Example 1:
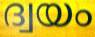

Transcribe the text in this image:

ദ്വയം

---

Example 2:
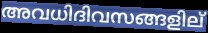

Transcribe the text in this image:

അവധിദിവസങ്ങളില്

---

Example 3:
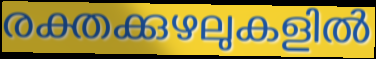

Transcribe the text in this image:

രക്തക്കുഴലുകളിൽ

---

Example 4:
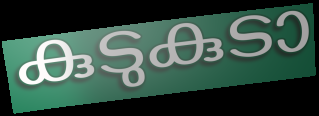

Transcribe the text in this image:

കുടുകുടാ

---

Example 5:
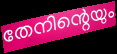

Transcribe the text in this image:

തേനിന്റെയും